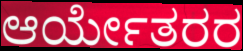
ಆರ್ಯೇತರರ